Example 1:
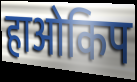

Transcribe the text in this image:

हाओकिप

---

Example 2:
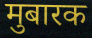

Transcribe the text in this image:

मुबारक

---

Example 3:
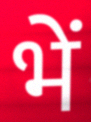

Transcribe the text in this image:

भें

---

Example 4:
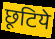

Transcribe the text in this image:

छूटिये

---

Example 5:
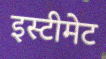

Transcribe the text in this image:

इस्टीमेट